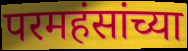
परमहंसांच्या